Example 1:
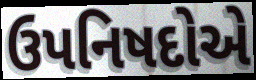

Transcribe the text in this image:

ઉપનિષદોએ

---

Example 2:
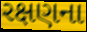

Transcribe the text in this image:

રક્ષણના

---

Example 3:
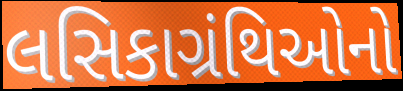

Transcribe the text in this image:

લસિકાગ્રંથિઓનો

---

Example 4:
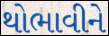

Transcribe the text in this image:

થોભાવીને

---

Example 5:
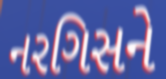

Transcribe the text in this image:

નરગિસને